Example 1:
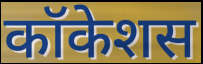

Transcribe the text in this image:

कॉकेशस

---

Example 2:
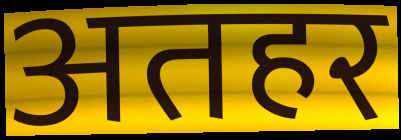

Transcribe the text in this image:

अतहर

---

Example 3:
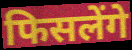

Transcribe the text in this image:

फिसलेंगे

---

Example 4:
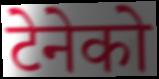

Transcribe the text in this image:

टेनेको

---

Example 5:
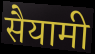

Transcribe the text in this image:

सैयामी